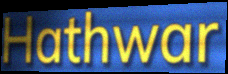
Hathwar